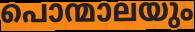
പൊന്മാലയും